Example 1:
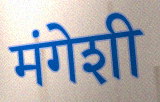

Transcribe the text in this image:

मंगेशी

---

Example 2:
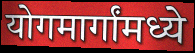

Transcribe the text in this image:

योगमार्गांमध्ये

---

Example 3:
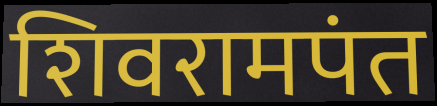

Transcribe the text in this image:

शिवरामपंत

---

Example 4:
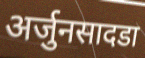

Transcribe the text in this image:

अर्जुनसादडा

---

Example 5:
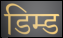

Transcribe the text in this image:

डिम्ड